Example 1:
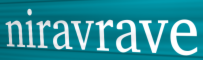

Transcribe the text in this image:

niravrave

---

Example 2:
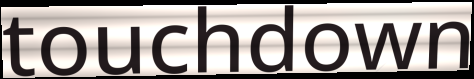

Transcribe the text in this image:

touchdown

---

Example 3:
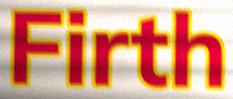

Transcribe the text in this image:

Firth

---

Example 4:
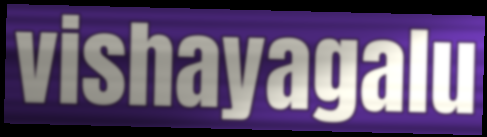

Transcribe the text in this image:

vishayagalu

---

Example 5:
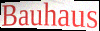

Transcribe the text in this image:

Bauhaus